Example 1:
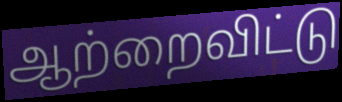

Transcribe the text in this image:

ஆற்றைவிட்டு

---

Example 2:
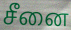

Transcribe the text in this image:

சீனை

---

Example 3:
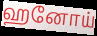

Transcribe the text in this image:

ஹனோய்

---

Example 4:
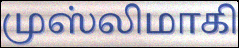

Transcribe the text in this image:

முஸ்லிமாகி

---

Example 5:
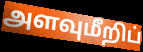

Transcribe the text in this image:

அளவுமீறிப்